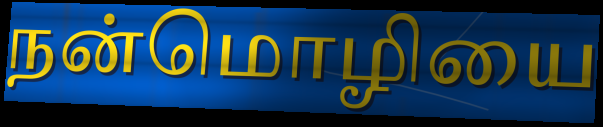
நன்மொழியை